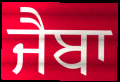
ਜੈਬਾ